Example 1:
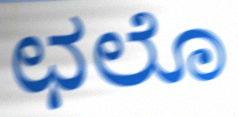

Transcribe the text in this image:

ಛಲೊ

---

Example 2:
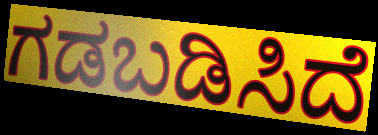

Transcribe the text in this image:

ಗಡಬಡಿಸಿದೆ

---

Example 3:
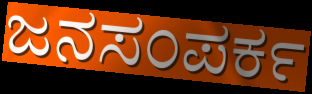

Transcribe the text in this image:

ಜನಸಂಪರ್ಕ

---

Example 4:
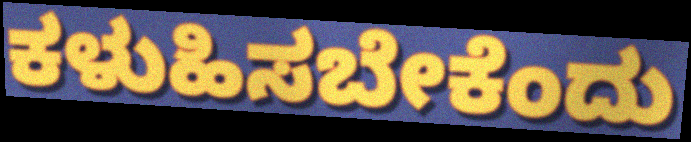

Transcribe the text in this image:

ಕಳುಹಿಸಬೇಕೆಂದು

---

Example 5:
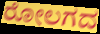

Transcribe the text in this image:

ರೋಲಗದ